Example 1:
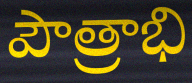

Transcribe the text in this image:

పౌత్రాభి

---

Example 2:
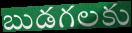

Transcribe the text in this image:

బుడగలకు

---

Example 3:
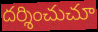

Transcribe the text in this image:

దర్శించుచూ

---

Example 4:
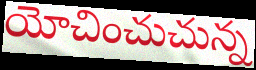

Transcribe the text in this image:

యోచించుచున్న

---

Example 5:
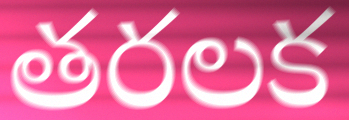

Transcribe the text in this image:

తరలక